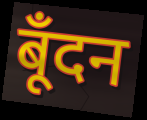
बूँदन